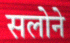
सलोने